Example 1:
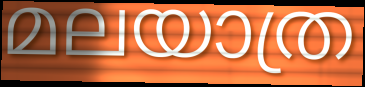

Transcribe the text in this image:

മലയാത്ര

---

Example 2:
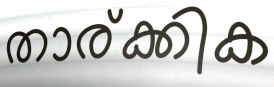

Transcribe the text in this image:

താര്ക്കിക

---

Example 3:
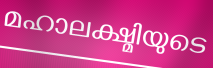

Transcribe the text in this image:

മഹാലക്ഷ്മിയുടെ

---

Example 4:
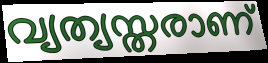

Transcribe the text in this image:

വ്യത്യസ്തരാണ്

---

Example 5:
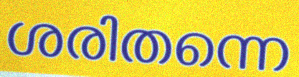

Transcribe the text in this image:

ശരിതന്നെ